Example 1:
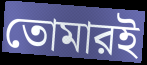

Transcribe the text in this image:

তোমারই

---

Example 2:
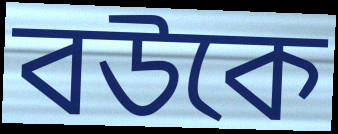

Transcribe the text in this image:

বউকে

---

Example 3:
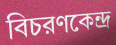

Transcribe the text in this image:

বিচরণকেন্দ্র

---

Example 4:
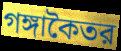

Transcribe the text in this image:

গঙ্গাকৈতর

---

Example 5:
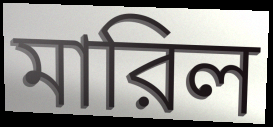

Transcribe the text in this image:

মারিল